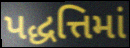
પદ્ધત્તિમાં